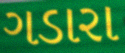
ગડારા